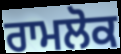
ਰਾਮਲੋਕ